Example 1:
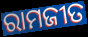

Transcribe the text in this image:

ରାମଜୀତ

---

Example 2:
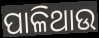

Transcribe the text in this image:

ପାଳିଥାଉ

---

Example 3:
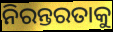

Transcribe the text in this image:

ନିରନ୍ତରତାକୁ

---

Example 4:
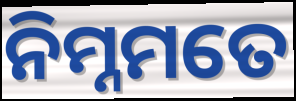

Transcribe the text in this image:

ନିମ୍ନମତେ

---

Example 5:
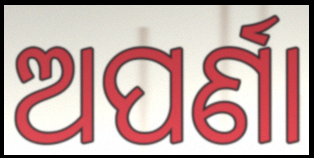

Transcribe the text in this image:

ଅପର୍ଣା